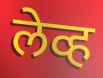
लेव्ह